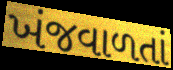
ખંજવાળતાં